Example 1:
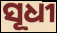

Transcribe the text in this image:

ସୂଧୀ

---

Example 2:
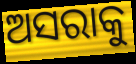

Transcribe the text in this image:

ଅସରାକୁ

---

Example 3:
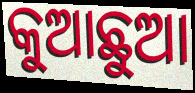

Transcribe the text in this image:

କୁଆଛୁଆ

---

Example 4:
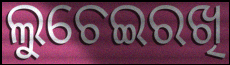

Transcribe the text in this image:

ଲୁଚେଇରଖି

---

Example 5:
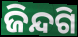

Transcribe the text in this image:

ଜିନ୍ଦଗି